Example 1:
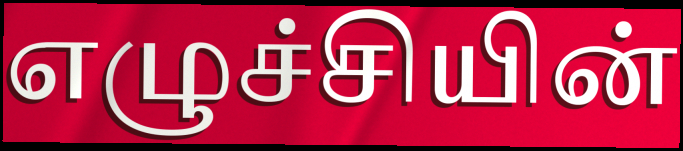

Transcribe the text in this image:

எழுச்சியின்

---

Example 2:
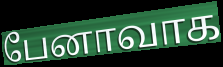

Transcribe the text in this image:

பேனாவாக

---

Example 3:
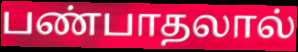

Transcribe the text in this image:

பண்பாதலால்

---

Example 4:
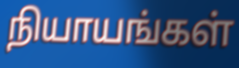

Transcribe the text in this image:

நியாயங்கள்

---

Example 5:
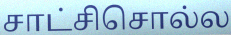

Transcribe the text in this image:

சாட்சிசொல்ல